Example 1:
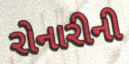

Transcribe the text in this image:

રોનારીની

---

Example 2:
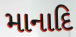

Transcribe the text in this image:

માનાદિ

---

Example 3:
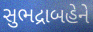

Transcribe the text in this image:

સુભદ્રાબહેને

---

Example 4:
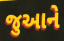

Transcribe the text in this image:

જુઆને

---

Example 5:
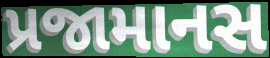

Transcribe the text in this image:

પ્રજામાનસ